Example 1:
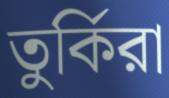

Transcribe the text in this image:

তুর্কিরা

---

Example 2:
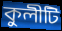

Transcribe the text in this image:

কুলীটি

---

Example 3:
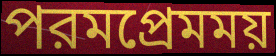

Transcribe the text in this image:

পরমপ্রেমময়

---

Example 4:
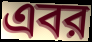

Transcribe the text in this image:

এবর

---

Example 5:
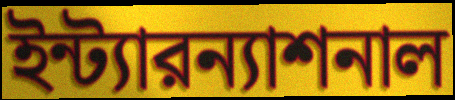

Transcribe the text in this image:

ইন্ট্যারন্যাশনাল